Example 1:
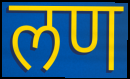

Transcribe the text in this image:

लण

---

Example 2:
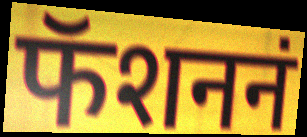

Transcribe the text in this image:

फॅशननं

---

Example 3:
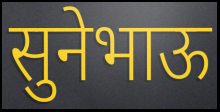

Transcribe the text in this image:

सुनेभाऊ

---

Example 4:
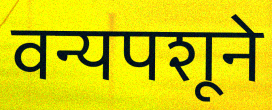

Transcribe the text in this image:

वन्यपशूने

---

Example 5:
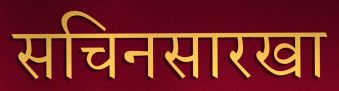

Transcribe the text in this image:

सचिनसारखा